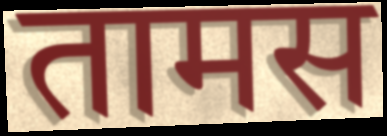
तामस